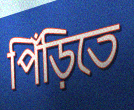
পিঁড়িতে